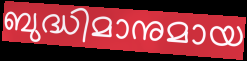
ബുദ്ധിമാനുമായ